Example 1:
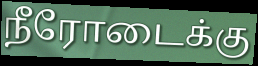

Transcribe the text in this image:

நீரோடைக்கு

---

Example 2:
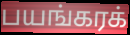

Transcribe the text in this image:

பயங்கரக்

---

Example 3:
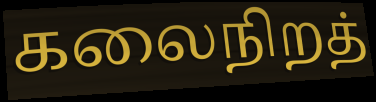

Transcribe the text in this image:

கலைநிறத்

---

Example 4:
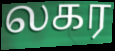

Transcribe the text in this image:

லகர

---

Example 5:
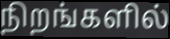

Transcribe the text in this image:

நிறங்களில்